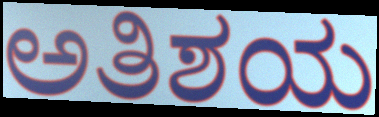
ಅತಿಶಯ